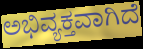
ಅಭಿವ್ಯಕ್ತವಾಗಿದೆ